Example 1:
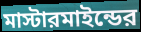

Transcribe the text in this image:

মাস্টারমাইন্ডের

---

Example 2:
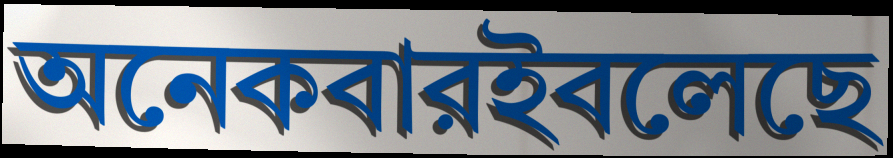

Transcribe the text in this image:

অনেকবারইবলেছে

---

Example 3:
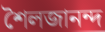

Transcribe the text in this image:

শৈলজানন্দ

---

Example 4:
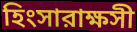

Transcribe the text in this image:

হিংসারাক্ষসী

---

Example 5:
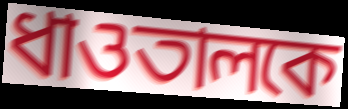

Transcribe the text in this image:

ধাওতালকে